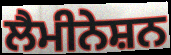
ਲੈਮੀਨੇਸ਼ਨ